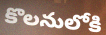
కొలనులోకి